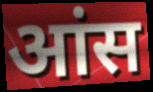
आंस